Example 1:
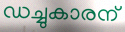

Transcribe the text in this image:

ഡച്ചുകാരന്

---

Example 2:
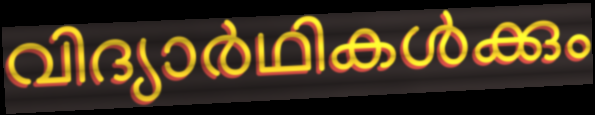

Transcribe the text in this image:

വിദ്യാർഥികൾക്കും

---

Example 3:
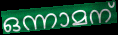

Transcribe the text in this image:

ഒന്നാമന്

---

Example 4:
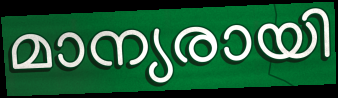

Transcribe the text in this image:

മാന്യരായി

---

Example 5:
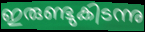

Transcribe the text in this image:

ഇരുണ്ടുകിടന്നു